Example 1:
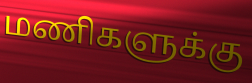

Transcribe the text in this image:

மணிகளுக்கு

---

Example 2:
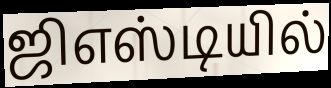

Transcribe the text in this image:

ஜிஎஸ்டியில்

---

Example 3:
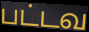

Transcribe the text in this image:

பட்டவ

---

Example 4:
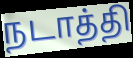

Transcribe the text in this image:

நடாத்தி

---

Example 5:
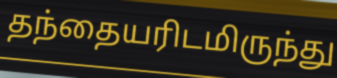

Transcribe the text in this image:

தந்தையரிடமிருந்து